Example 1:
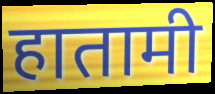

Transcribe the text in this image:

हातामी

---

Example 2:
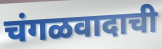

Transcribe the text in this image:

चंगळवादाची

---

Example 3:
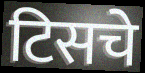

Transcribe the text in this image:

टिसचे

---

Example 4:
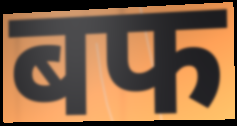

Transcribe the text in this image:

बफ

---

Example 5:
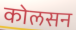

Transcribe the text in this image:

कोलसन